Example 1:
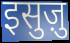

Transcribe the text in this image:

इसुज़ु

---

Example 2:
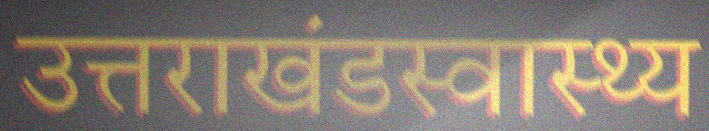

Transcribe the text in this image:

उत्तराखंडस्वास्थ्य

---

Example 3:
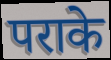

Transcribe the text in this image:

पराके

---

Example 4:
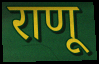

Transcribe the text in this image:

राणू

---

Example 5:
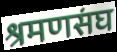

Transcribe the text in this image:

श्रमणसंघ